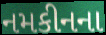
નમકીનના